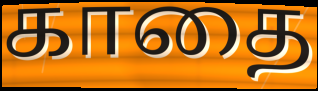
காதை